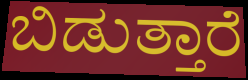
ಬಿಡುತ್ತಾರೆ